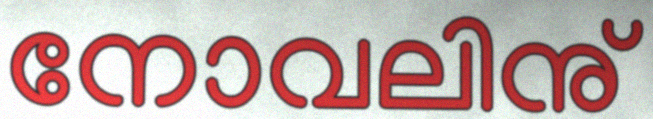
നോവലിനു്